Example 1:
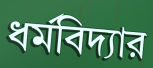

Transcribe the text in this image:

ধর্মবিদ্যার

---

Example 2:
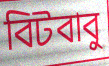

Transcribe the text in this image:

বিটবাবু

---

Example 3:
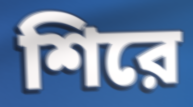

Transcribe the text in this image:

শিরে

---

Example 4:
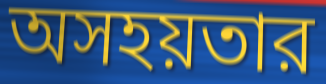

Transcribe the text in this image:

অসহয়তার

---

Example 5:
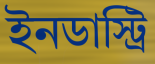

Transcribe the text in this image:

ইনডাস্ট্রি